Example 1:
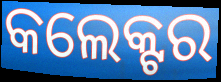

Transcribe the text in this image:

କଲେକ୍ଟର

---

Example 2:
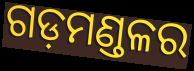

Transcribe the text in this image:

ଗଡ଼ମଣ୍ଡଳର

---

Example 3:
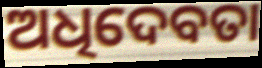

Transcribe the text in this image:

ଅଧିଦେବତା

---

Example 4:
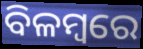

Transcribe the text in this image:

ବିଳମ୍ୱରେ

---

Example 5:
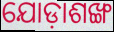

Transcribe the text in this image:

ଯୋଡ଼ାଶଙ୍ଖ